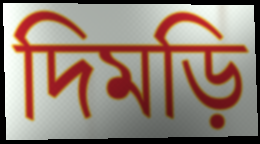
দিমড়ি